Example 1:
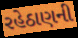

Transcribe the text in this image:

રહેઠાણની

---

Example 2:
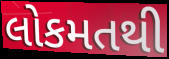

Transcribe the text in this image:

લોકમતથી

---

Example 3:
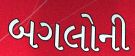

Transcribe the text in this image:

બગલોની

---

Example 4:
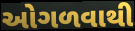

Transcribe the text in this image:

ઓગળવાથી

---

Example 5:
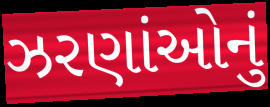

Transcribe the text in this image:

ઝરણાંઓનું